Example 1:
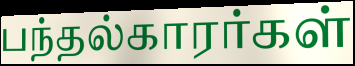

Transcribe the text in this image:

பந்தல்காரர்கள்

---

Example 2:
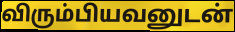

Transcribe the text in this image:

விரும்பியவனுடன்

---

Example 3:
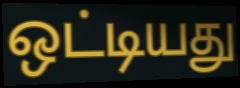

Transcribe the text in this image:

ஒட்டியது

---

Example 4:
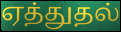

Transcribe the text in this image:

ஏத்துதல்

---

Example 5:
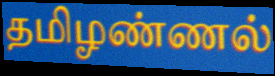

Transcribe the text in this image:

தமிழண்ணல்